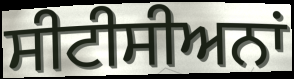
ਸੀਟੀਸੀਅਨਾਂ